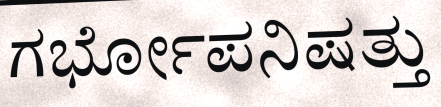
ಗರ್ಭೋಪನಿಷತ್ತು